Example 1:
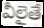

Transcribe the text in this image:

వీలైతే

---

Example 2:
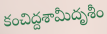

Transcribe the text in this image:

కంచిద్దశామీదృశీం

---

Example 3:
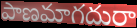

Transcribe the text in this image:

పాణమాగదురా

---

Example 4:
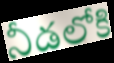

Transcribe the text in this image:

నీడలోకి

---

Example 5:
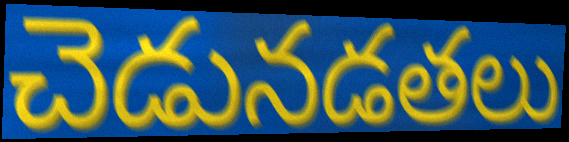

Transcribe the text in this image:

చెడునడతలు